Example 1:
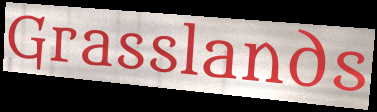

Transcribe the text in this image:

Grasslands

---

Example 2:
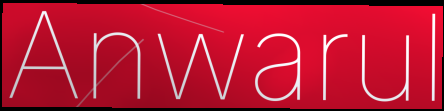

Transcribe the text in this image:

Anwarul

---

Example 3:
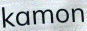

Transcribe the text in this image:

kamon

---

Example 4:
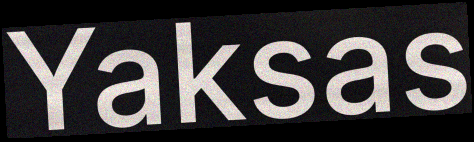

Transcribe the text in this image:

Yaksas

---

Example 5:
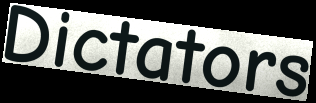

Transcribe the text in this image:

Dictators